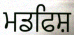
ਮਡਫਿਸ਼